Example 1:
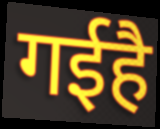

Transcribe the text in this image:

गईहै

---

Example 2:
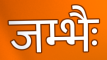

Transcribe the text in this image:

जम्भैः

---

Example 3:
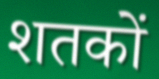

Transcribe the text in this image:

शतकों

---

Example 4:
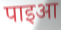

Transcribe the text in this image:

पाइआ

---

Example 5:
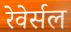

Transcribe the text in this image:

रेवेर्सल